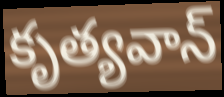
కృత్యవాన్